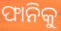
ଫାନିକୁ